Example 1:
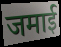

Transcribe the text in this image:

जमाई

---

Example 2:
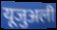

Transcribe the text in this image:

यूजुअली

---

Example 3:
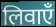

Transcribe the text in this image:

लिवाएँ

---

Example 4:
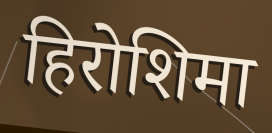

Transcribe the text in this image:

हिरोशिमा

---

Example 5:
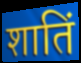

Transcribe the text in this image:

शातिं